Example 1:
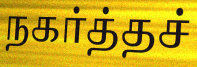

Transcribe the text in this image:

நகர்த்தச்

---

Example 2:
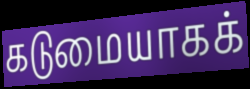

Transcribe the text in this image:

கடுமையாகக்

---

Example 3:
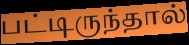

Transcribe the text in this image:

பட்டிருந்தால்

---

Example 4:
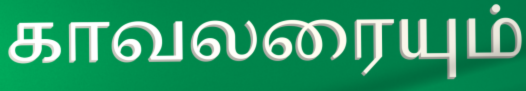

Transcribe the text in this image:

காவலரையும்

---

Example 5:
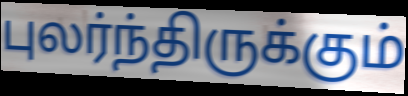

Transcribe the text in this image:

புலர்ந்திருக்கும்